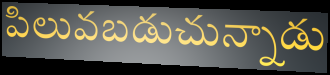
పిలువబడుచున్నాడు